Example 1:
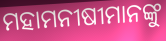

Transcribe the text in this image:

ମହାମନୀଷୀମାନଙ୍କୁ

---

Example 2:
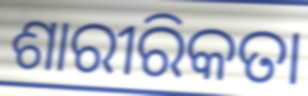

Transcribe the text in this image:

ଶାରୀରିକତା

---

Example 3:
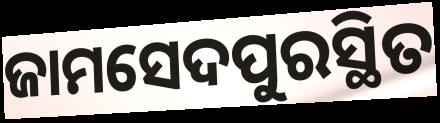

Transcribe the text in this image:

ଜାମସେଦପୁରସ୍ଥିତ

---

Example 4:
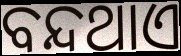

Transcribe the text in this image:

ବନ୍ଦଥାଏ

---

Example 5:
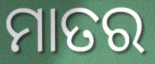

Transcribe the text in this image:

ମାତର